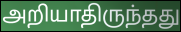
அறியாதிருந்தது